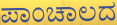
ಪಾಂಚಾಲದ